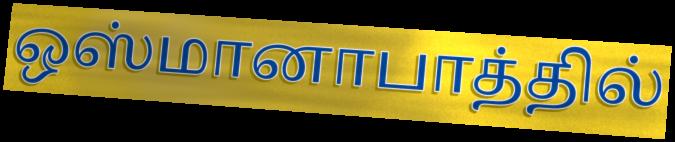
ஒஸ்மானாபாத்தில்